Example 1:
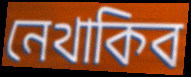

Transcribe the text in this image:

নেথাকিব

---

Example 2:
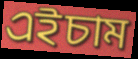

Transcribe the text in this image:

এইচাম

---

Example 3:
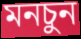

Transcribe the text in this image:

মনচুন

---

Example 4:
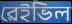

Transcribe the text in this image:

ৱেইভিল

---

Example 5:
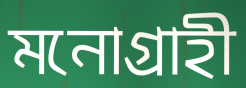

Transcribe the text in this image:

মনোগ্ৰাহী